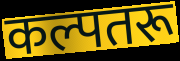
कल्पतरू